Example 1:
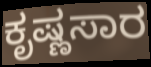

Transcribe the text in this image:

ಕೃಷ್ಣಸಾರ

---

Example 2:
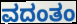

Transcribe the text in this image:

ವದಂತಂ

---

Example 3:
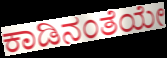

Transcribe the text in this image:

ಕಾಡಿನಂತೆಯೇ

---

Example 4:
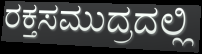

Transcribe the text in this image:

ರಕ್ತಸಮುದ್ರದಲ್ಲಿ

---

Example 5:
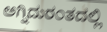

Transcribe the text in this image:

ಅಗ್ನಿದುರಂತದಲ್ಲಿ